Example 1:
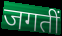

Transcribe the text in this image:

जगतीं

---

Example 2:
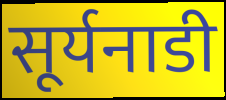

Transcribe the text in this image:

सूर्यनाडी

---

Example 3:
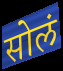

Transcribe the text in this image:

सोलं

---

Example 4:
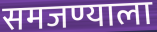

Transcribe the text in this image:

समजण्याला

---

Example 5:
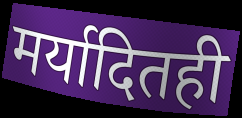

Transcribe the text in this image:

मर्यादितही